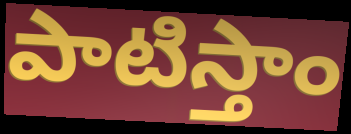
పాటిస్తాం